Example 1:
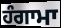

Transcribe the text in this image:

ਹੰਗਾਮਾ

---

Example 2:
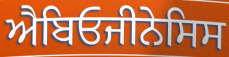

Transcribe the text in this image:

ਐਬਿਓਜੀਨੇਸਿਸ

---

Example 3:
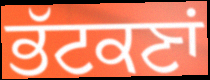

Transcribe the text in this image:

ਭੱਟਕਣਾਂ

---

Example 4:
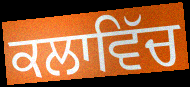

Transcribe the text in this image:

ਕਲਾਵਿੱਚ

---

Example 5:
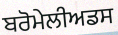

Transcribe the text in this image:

ਬਰੋਮੇਲੀਅਡਸ